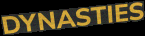
DYNASTIES